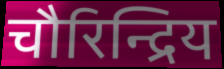
चौरिन्द्रिय